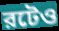
রটেও